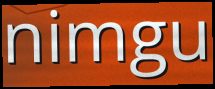
nimgu